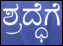
ಶ್ರದ್ಧೆಗೆ